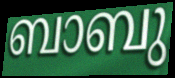
ബാബു